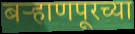
बऱ्हाणपूरच्या